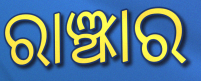
ରାଞ୍ଝାର